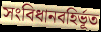
সংবিধানবহির্ভূত